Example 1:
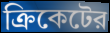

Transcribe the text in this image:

ক্রিকেটের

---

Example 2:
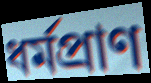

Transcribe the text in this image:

ধর্মপ্রাণ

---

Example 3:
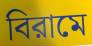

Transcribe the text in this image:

বিরামে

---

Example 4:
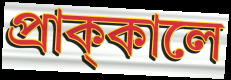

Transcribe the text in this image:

প্রাক্‌কালে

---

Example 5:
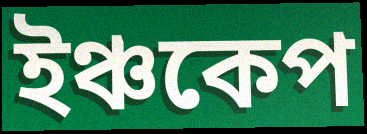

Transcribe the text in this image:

ইঞ্চকেপ